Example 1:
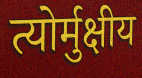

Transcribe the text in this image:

त्योर्मुक्षीय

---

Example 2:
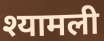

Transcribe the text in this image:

श्यामली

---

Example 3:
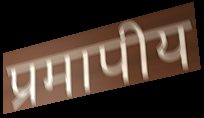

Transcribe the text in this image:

प्रमापीय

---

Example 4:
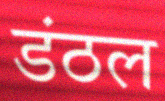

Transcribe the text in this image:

डंठल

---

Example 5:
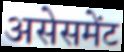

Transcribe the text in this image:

असेसमेंट